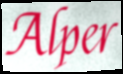
Alper